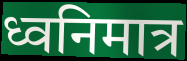
ध्वनिमात्र